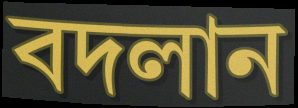
বদলান